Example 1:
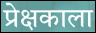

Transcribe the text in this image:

प्रेक्षकाला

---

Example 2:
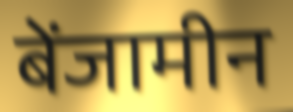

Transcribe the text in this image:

बेंजामीन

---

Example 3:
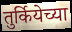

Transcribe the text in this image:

तुर्कियेच्या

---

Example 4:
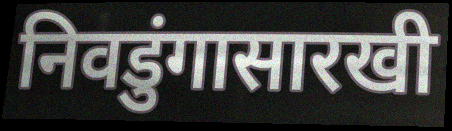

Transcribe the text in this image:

निवडुंगासारखी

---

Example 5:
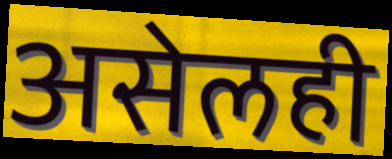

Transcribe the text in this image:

असेलही